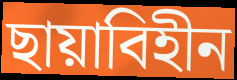
ছায়াবিহীন